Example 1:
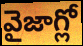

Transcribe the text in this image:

వైజాగ్లో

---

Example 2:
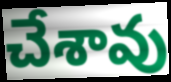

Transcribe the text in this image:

చేశావు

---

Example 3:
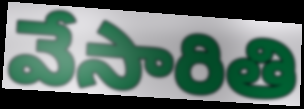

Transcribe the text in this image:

వేసారితి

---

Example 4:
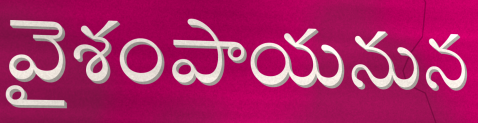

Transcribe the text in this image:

వైశంపాయనున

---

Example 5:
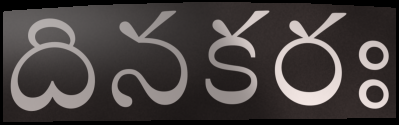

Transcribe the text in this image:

దినకరః